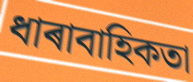
ধাৰাবাহিকতা